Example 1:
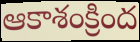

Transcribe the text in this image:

ఆకాశంక్రింద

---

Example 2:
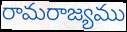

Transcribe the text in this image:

రామరాజ్యము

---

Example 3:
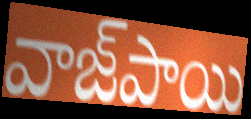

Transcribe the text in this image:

వాజ్‌పాయి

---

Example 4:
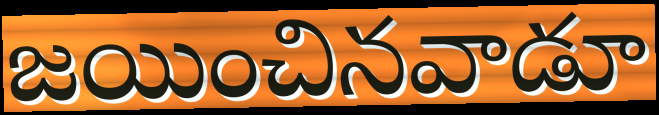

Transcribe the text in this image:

జయించినవాడూ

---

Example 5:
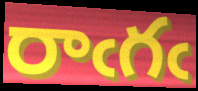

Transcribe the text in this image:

రాఁగఁ